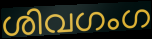
ശിവഗംഗ